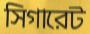
সিগারেট